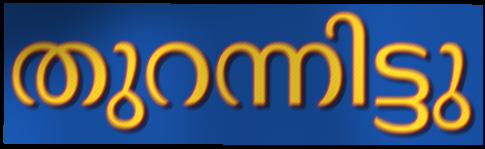
തുറന്നിട്ടു